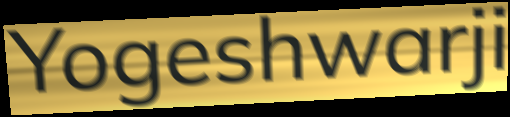
Yogeshwarji